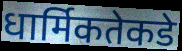
धार्मिकतेकडे